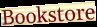
Bookstore